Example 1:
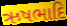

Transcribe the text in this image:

ઋષભાદિ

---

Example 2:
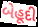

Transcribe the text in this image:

બેહૂદી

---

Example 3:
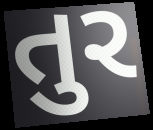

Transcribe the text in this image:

તુર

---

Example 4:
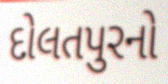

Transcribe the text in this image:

દોલતપુરનો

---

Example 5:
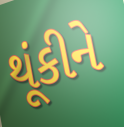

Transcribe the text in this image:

થૂંકીને